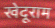
खेदूराम